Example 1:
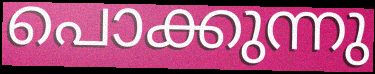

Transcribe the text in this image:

പൊക്കുന്നു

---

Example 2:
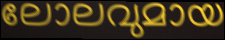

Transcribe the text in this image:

ലോലവുമായ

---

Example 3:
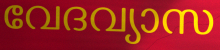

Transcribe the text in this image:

വേദവ്യാസ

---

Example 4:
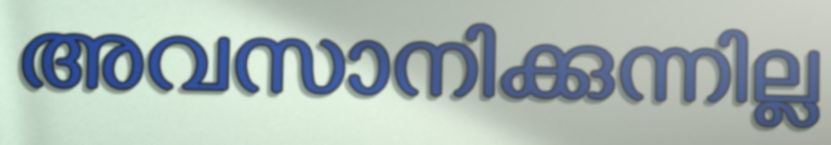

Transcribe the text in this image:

അവസാനിക്കുന്നില്ല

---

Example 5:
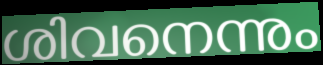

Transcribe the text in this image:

ശിവനെന്നും